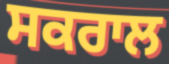
ਸਕਰਾਲ